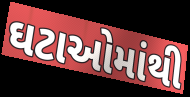
ઘટાઓમાંથી